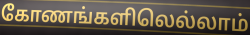
கோணங்களிலெல்லாம்